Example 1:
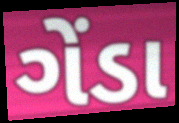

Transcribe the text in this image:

ગેંડા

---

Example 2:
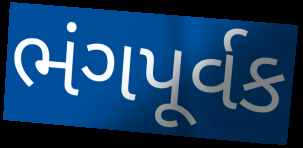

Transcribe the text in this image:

ભંગપૂર્વક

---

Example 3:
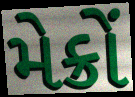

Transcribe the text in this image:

મેક્રોં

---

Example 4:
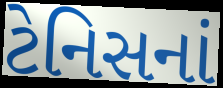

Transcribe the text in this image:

ટેનિસનાં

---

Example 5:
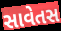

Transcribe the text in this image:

સાવેતસ